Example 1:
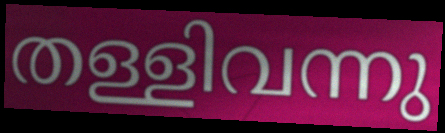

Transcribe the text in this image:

തള്ളിവന്നു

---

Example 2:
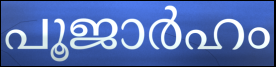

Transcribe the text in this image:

പൂജാർഹം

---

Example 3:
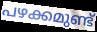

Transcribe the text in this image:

പഴക്കമുണ്ട്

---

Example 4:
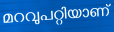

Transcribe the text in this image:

മറവുപറ്റിയാണ്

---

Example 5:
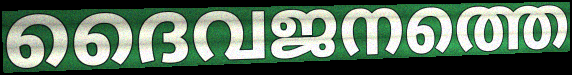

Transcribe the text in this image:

ദൈവജനത്തെ